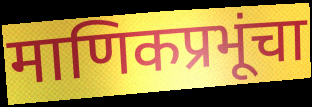
माणिकप्रभूंचा